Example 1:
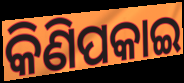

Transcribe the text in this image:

କିଣିପକାଇ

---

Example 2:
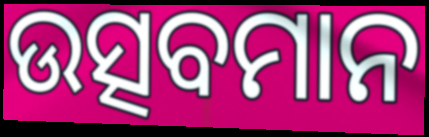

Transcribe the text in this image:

ଉତ୍ସବମାନ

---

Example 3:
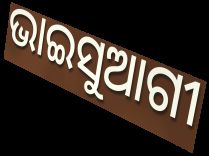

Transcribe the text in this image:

ଭାଇସୁଆଗୀ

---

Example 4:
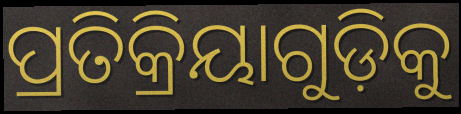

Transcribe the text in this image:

ପ୍ରତିକ୍ରିୟାଗୁଡ଼ିକୁ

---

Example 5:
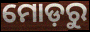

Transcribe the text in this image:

ମୋଡ଼ରୁ